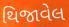
થિજાવેલ